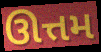
ઊત્તમ